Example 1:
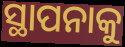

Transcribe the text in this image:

ସ୍ଥାପନାକୁ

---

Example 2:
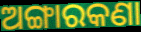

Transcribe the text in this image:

ଅଙ୍ଗାରକଣା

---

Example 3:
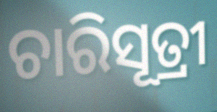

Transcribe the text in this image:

ଚାରିସୂତ୍ରୀ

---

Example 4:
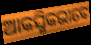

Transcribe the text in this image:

ଆକସ୍ମିକଭାବେ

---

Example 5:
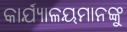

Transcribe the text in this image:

କାର୍ଯ୍ୟାଳୟମାନଙ୍କୁ